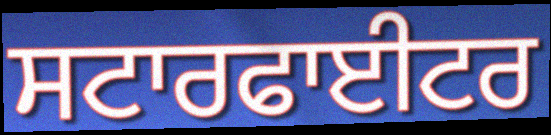
ਸਟਾਰਫਾਈਟਰ